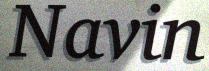
Navin